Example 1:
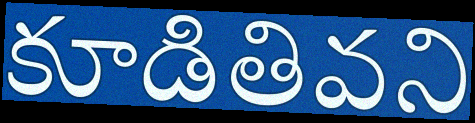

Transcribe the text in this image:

కూడితివని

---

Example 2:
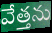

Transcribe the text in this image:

వేత్తను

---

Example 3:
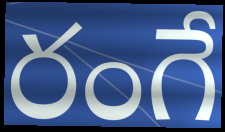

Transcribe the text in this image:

రంగే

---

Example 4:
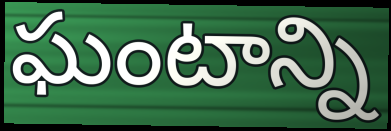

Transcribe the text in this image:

ఘంటాన్ని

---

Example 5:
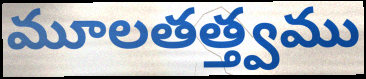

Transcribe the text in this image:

మూలతత్త్వము